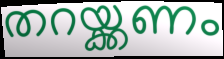
തറയ്ക്കണം